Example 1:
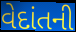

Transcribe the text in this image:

વેદાંતની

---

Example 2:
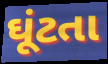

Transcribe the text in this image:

ઘૂંટતા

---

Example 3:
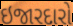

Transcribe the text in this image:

ઇજારદારો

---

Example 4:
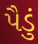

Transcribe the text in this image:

પૈડું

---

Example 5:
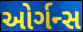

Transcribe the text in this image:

ઓર્ગન્સ